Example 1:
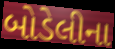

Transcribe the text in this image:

બોડેલીના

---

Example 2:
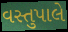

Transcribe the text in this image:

વસ્તુપાલે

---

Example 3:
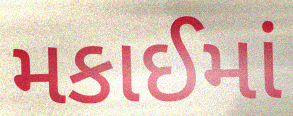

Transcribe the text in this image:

મકાઈમાં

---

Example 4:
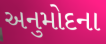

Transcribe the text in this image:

અનુમોદના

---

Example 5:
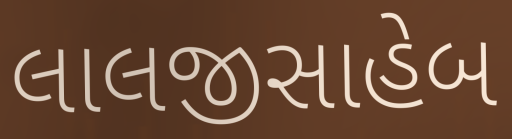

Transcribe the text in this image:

લાલજીસાહેબ